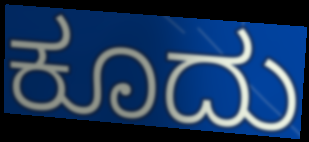
ಕೂದು